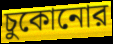
চুকোনোর